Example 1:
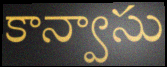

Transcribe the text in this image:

కాన్వాసు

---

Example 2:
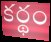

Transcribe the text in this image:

కర్థం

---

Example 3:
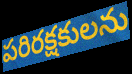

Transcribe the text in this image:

పరిరక్షకులను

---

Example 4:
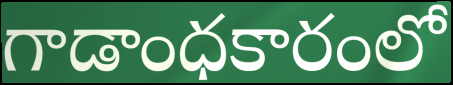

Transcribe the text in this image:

గాడాంధకారంలో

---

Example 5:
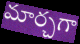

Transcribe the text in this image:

మార్చగా